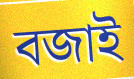
বজাই